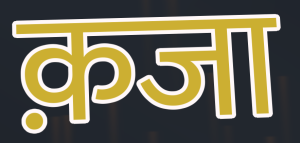
क़जा